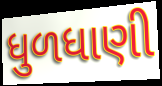
ધુળધાણી